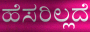
ಹೆಸರಿಲ್ಲದೆ